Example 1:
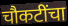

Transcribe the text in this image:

चौकटींचा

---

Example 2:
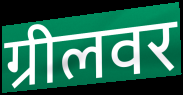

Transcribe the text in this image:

ग्रीलवर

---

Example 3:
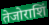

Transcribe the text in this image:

तेजोराशिं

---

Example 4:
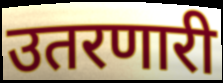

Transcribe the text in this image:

उतरणारी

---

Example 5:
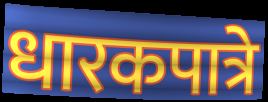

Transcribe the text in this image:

धारकपात्रे